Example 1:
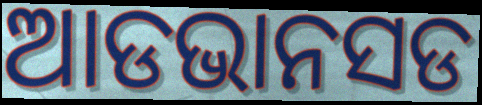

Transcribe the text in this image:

ଆଡଭାନସଡ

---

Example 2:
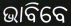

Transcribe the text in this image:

ଭାବିବେ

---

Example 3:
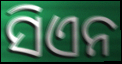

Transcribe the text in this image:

ସିଏନ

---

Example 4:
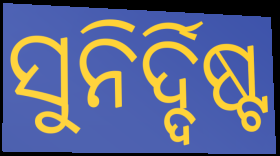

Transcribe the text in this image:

ସୁନିର୍ଦ୍ଦିଷ୍ଟ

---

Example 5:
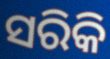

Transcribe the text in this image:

ସରିକି